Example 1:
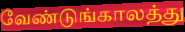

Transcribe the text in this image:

வேண்டுங்காலத்து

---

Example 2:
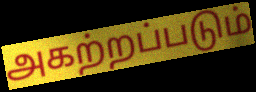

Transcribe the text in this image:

அகற்றப்படும்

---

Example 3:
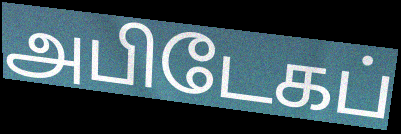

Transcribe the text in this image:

அபிடேகப்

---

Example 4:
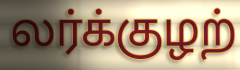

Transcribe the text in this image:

லர்க்குழற்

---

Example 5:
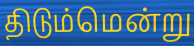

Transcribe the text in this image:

திடும்மென்று